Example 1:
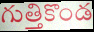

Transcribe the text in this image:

గుత్తికొండ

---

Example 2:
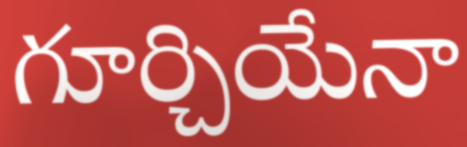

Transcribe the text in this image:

గూర్చియేనా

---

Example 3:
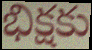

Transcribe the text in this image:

భిక్షకు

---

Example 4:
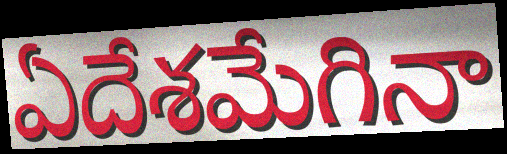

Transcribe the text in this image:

ఏదేశమేగినా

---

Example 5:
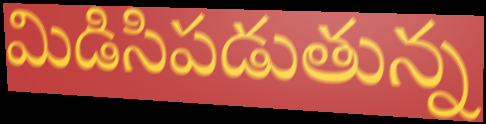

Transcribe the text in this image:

మిడిసిపడుతున్న